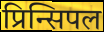
प्रिन्सिपल